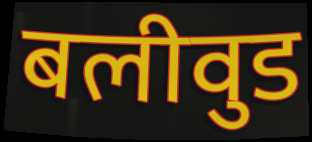
बलीवुड